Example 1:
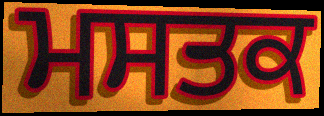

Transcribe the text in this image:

ਮਸਤਕ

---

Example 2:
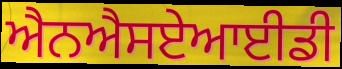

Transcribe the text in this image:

ਐਨਐਸਏਆਈਡੀ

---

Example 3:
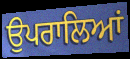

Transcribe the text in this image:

ਉਪਰਾਲਿਆਂ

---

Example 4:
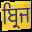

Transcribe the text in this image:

ਬ੍ਰਿਜ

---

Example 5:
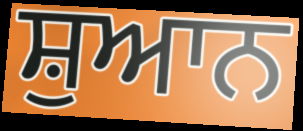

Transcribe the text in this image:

ਸ਼ੁਆਨ